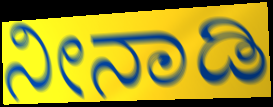
ನೀನಾಡಿ